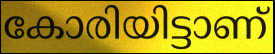
കോരിയിട്ടാണ്